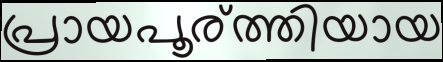
പ്രായപൂര്ത്തിയായ